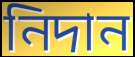
নিদান